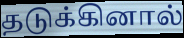
தடுக்கினால்